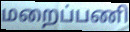
மறைப்பணி